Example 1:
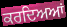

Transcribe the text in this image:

ਕਰਦਿਅਆਂ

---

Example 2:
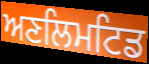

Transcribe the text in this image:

ਅਣਲਿਮਟਿਡ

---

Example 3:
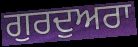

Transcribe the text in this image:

ਗੁਰਦੁਅਰਾ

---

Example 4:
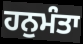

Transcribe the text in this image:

ਹਨੁਮੰਤਾ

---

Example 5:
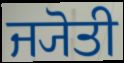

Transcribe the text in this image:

ਜ੍ਯੋਤੀ